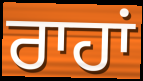
ਰਾਹਾਂ